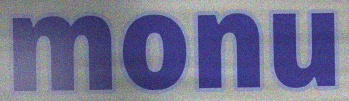
monu